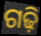
ଗଢ଼ି